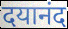
दयानंद